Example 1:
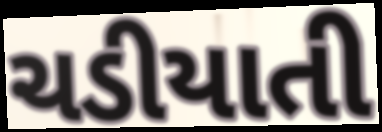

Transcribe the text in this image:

ચડીયાતી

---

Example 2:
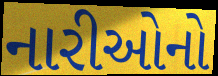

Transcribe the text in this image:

નારીઓનો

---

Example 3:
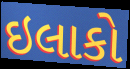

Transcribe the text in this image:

ઇલાકો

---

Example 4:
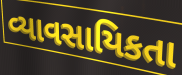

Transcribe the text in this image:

વ્યાવસાયિકતા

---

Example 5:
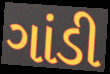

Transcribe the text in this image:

ગાંડી